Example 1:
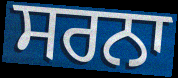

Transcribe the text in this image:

ਸਰਨਾ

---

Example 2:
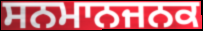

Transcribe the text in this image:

ਸਨਮਾਨਜਨਕ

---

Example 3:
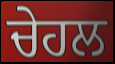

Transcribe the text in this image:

ਚੇਹਲ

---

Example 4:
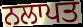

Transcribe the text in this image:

ਨਲਾਪਤ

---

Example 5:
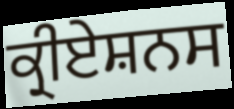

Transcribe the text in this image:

ਕ੍ਰੀਏਸ਼ਨਸ